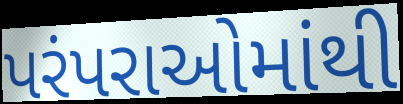
પરંપરાઓમાંથી